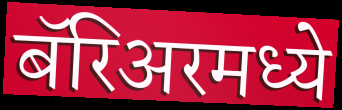
बॅरिअरमध्ये